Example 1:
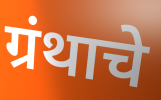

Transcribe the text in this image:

ग्रंथाचे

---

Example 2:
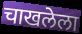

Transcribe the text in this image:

चाखलेला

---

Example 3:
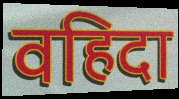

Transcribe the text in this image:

वहिदा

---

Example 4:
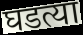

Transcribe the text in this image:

घडत्या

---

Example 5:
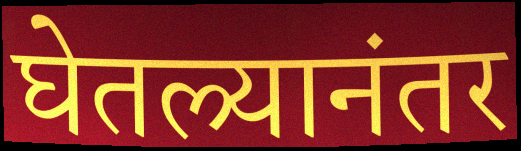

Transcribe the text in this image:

घेतल्यानंतर